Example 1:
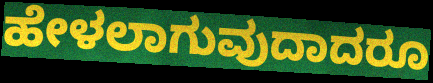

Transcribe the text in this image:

ಹೇಳಲಾಗುವುದಾದರೂ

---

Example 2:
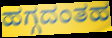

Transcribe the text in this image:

ಹಗ್ಗದಂತಹ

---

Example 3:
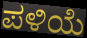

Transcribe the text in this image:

ಪಳಿಯೆ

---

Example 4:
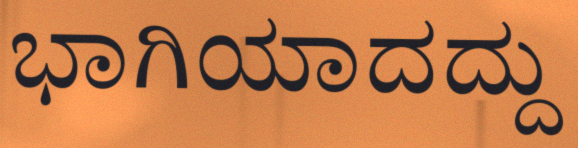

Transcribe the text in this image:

ಭಾಗಿಯಾದದ್ದು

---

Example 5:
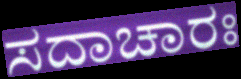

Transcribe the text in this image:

ಸದಾಚಾರಃ